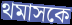
থমাসকে